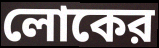
লোকের